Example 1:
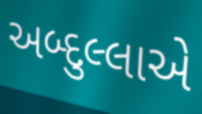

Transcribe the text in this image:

અબ્દુલ્લાએ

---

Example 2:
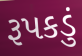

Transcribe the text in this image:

રૂપકડું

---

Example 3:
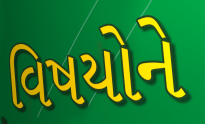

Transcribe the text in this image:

વિષયોને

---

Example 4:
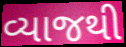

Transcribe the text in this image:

વ્યાજથી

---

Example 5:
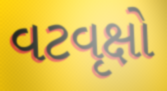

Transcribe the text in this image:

વટવૃક્ષો